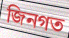
জিনগত